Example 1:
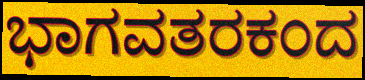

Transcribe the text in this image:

ಭಾಗವತರಕಂದ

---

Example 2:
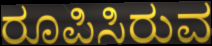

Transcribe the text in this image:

ರೂಪಿಸಿರುವ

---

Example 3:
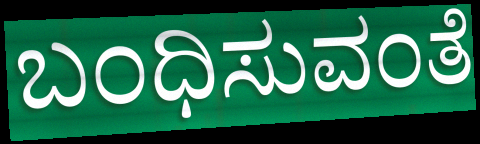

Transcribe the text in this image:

ಬಂಧಿಸುವಂತೆ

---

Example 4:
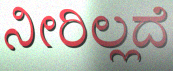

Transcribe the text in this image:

ನೀರಿಲ್ಲದೆ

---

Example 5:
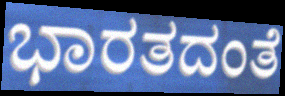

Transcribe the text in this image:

ಭಾರತದಂತೆ